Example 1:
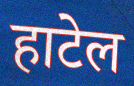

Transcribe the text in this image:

हाटेल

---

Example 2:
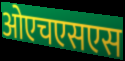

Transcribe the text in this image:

ओएचएसएस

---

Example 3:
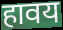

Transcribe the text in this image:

हावय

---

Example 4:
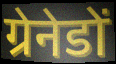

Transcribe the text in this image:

ग्रेनेडों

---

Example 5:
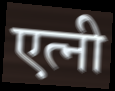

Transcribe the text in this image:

एत्नी